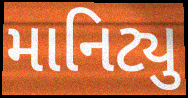
માનિટ્યુ